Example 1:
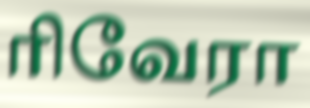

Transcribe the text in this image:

ரிவேரா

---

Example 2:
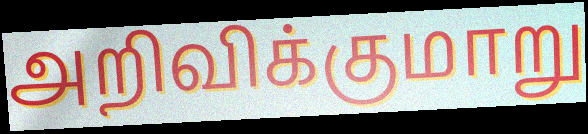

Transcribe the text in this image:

அறிவிக்குமாறு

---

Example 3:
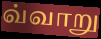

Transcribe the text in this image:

வ்வாறு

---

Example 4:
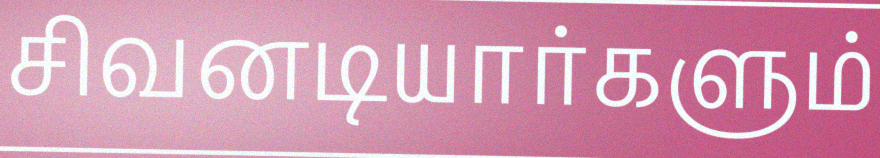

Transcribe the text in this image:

சிவனடியார்களும்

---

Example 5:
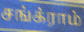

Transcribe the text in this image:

சங்க்ராம்